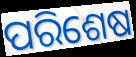
ପରିଶେଷ